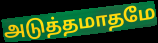
அடுத்தமாதமே